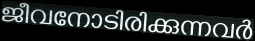
ജീവനോടിരിക്കുന്നവർ